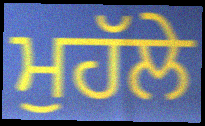
ਮੁਹੱਲੇ